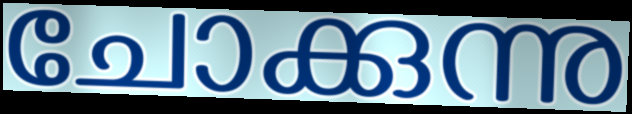
ചോക്കുന്നു